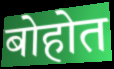
बोहोत